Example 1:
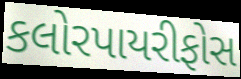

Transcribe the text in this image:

કલોરપાયરીફોસ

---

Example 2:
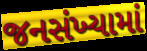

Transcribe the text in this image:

જનસંખ્યામાં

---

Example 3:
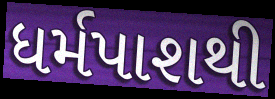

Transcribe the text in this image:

ધર્મપાશથી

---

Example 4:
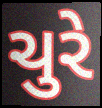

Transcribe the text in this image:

ચુરે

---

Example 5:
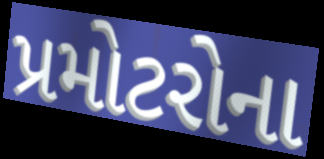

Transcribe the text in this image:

પ્રમોટરોના